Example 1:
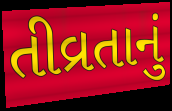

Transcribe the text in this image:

તીવ્રતાનું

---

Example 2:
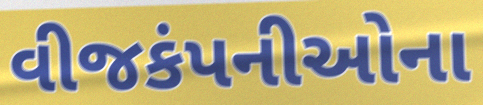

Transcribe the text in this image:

વીજકંપનીઓના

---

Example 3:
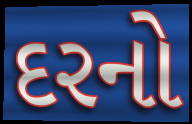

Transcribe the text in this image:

દરનો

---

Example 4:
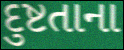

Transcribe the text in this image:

દુષ્ટતાના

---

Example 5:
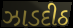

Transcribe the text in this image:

ઝાડદીઠ